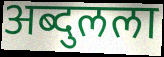
अब्दुलला